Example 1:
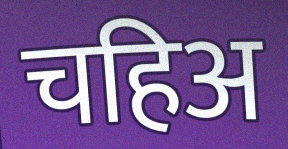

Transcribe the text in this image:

चहिअ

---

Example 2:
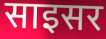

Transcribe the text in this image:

साइसर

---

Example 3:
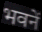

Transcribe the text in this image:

भवनें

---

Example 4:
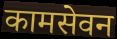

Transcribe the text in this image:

कामसेवन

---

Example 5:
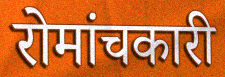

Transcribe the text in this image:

रोमांचकारी